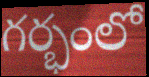
గర్భంలో